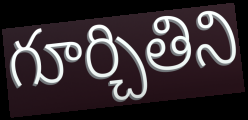
గూర్చితిని